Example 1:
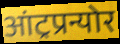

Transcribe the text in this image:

आंट्रप्रन्योर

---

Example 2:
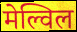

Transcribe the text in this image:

मेल्विल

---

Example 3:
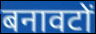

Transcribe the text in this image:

बनावटों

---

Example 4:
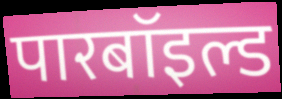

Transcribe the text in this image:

पारबॉइल्ड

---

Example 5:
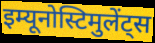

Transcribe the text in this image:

इम्यूनोस्टिमुलेंट्स